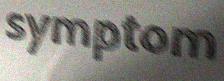
symptom